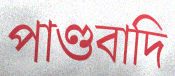
পাণ্ডবাদি